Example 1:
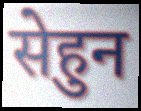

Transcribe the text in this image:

सेहुन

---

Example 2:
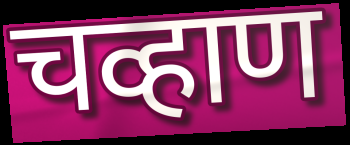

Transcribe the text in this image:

चव्हाण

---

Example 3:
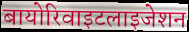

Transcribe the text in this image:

बायोरिवाइटलाइजेशन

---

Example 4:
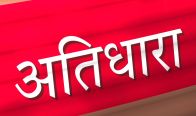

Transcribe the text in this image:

अतिधारा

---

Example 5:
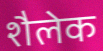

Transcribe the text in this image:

शैलेक